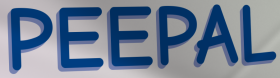
PEEPAL